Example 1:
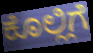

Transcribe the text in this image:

ಕೊಲ್ಲಿಗೆ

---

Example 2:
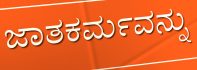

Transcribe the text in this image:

ಜಾತಕರ್ಮವನ್ನು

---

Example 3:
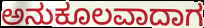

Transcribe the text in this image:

ಅನುಕೂಲವಾದಾಗ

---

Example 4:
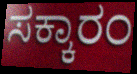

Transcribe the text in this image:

ಸಕ್ಕಾರಂ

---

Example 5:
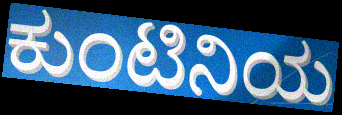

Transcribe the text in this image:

ಕುಂಟಿನಿಯ